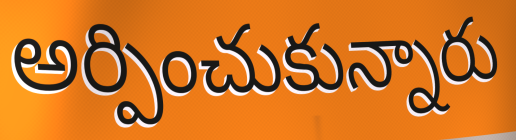
అర్పించుకున్నారు